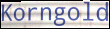
Korngold